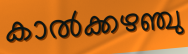
കാൽക്കഴഞ്ചു